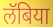
लॅबिया